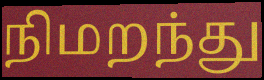
நிமறந்து